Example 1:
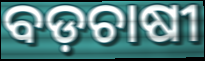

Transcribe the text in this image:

ବଡ଼ଚାଷୀ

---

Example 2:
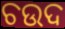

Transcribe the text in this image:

ଚଉଦ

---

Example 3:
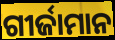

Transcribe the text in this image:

ଗୀର୍ଜାମାନ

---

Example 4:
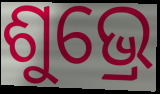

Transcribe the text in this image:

ଶୁଭ୍ରେ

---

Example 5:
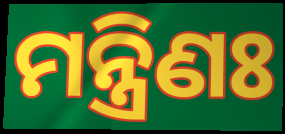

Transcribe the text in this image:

ମନ୍ତ୍ରିଣଃ